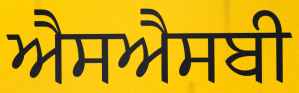
ਐਸਐਸਬੀ